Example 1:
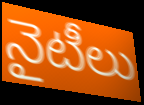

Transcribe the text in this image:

నైటీలు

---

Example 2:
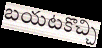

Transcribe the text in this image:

బయటకొచ్చి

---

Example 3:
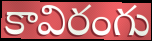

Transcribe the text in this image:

కావిరంగు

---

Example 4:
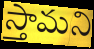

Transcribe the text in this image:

స్తామని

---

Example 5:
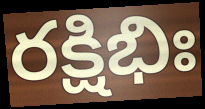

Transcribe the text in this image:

రక్షిభిః